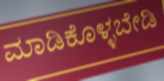
ಮಾಡಿಕೊಳ್ಳಬೇಡಿ